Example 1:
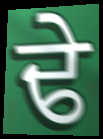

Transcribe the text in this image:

ਢੇ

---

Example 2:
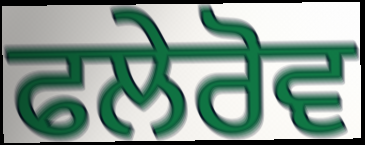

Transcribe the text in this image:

ਫਲੇਰੋਵ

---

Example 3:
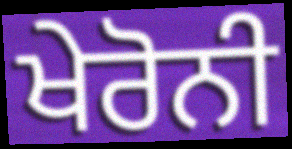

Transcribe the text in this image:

ਖੇਰੋਨੀ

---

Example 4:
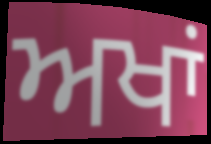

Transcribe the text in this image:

ਅਖਾਂ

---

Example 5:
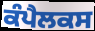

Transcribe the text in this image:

ਕੰਪੈਲਕਸ